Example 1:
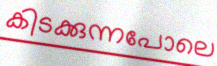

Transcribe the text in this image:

കിടക്കുന്നപോലെ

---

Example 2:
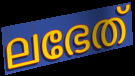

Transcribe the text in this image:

ലഭേത്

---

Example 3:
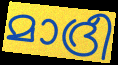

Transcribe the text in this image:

മാദ്രീ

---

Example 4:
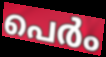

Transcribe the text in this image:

പെർം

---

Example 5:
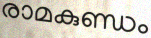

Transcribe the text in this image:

രാമകുണ്ഡം